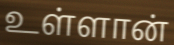
உள்ளான்